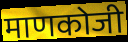
माणकोजी